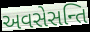
અવસેસન્તિ